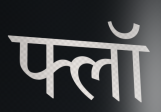
फ्लॉ